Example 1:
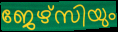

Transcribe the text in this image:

ജേഴ്സിയും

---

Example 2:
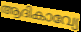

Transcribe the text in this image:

ആദികാവ്യേ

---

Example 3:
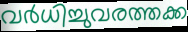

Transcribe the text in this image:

വർധിച്ചുവരത്തക്ക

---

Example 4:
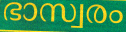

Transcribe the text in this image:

ഭാസ്വരം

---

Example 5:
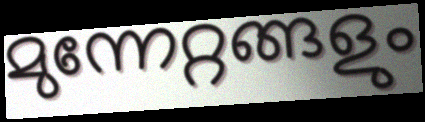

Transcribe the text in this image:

മുന്നേറ്റങ്ങളും